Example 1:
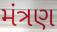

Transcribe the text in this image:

મંત્રણ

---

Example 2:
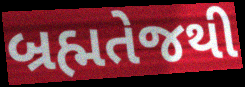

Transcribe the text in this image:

બ્રહ્મતેજથી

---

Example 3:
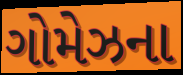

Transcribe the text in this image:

ગોમેઝના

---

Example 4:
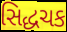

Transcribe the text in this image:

સિદ્ધચક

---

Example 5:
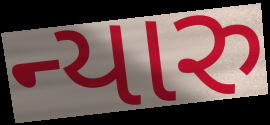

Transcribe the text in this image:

ન્યારુ